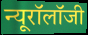
न्यूरॉलॉजी